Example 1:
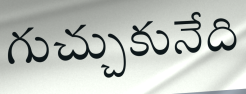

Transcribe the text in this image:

గుచ్చుకునేది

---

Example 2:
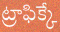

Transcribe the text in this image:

ట్రాఫిక్కే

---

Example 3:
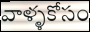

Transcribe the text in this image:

వాళ్ళకోసం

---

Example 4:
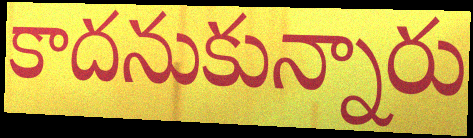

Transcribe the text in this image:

కాదనుకున్నారు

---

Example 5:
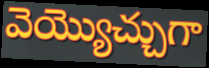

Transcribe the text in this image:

వెయ్యొచ్చుగా